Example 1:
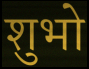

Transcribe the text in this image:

शुभो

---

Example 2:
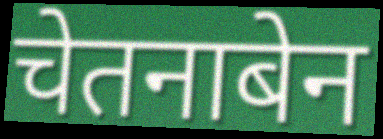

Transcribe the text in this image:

चेतनाबेन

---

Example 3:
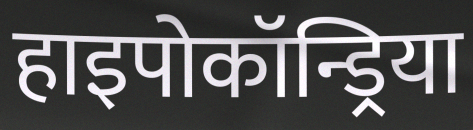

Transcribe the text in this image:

हाइपोकॉन्ड्रिया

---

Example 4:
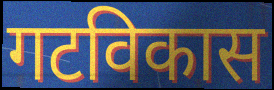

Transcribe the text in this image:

गटविकास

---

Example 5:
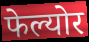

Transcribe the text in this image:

फेल्योर